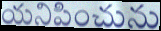
యనిపించును